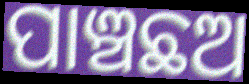
ପାଞ୍ଚଛଅ